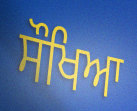
ਸੌਖਿਆ